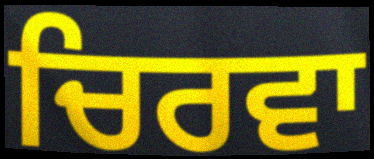
ਚਿਰਵਾ